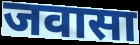
जवासा